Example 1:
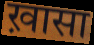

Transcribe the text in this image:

ख़ासा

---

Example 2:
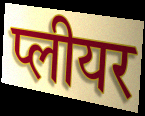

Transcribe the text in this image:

प्लीयर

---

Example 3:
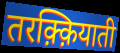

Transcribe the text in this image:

तरक़्क़ियाती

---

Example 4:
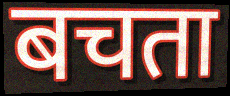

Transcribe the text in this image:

बचता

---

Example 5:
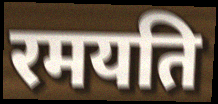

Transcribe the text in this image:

रमयति